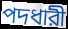
পদধারী